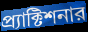
প্র্যাক্টিশনার